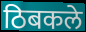
ठिबकले